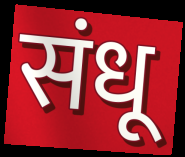
संधू